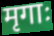
मृगाः